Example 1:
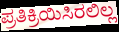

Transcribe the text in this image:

ಪ್ರತಿಕ್ರಿಯಿಸಿರಲಿಲ್ಲ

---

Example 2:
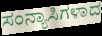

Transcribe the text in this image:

ಸಂನ್ಯಾಸಿಗಳಾದ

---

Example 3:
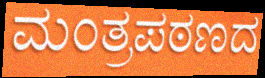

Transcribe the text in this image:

ಮಂತ್ರಪಠಣದ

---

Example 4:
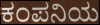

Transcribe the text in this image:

ಕಂಪನಿಯ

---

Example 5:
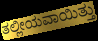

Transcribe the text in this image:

ತಲ್ಲೀಯವಾಯಿತ್ತು